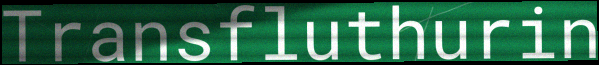
Transfluthurin